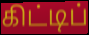
கிட்டிப்